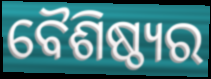
ବୈଶିଷ୍ଠ୍ୟର